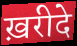
ख़रीदे